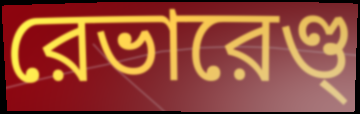
রেভারেণ্ড্